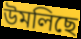
উমলিছে